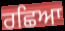
ਰਛਿਆ